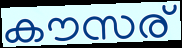
കൗസര്